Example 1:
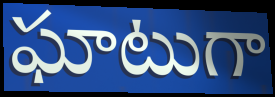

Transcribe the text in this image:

ఘాటుగా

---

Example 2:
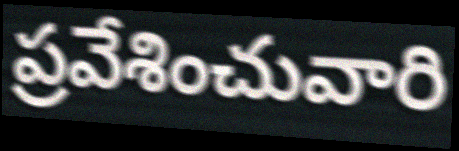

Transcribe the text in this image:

ప్రవేశించువారి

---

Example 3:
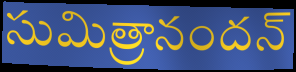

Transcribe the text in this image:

సుమిత్రానందన్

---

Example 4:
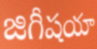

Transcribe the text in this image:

జిగీషయా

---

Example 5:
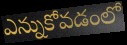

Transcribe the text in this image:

ఎన్నుకోవడంలో